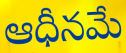
ఆధీనమే